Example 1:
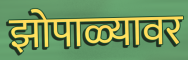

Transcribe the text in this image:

झोपाळ्यावर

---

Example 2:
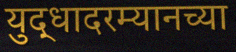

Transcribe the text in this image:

युद्धादरम्यानच्या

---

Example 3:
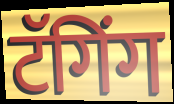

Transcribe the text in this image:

टॅगिंग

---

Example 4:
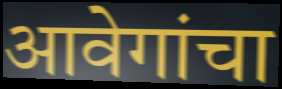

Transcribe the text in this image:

आवेगांचा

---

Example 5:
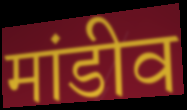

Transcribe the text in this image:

मांडीव